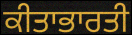
ਕੀਤਾਭਾਰਤੀ